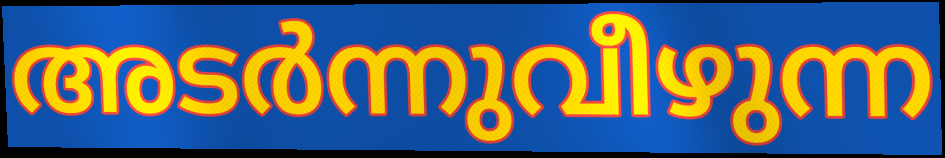
അടർന്നുവീഴുന്ന